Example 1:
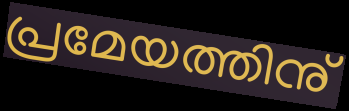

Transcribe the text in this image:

പ്രമേയത്തിനു്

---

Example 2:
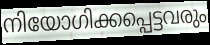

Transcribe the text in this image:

നിയോഗിക്കപ്പെട്ടവരും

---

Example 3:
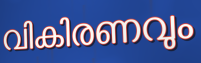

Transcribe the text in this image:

വികിരണവും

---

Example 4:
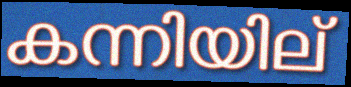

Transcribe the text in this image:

കന്നിയില്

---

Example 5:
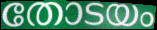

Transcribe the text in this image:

തോടയം